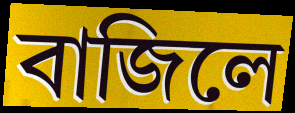
বাজিলে